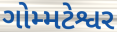
ગોમ્મટેશ્વર